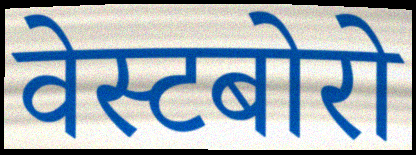
वेस्टबोरो